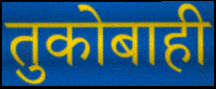
तुकोबाही